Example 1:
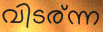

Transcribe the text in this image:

വിടര്ന്ന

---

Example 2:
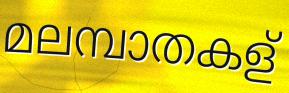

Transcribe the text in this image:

മലമ്പാതകള്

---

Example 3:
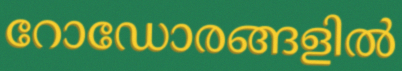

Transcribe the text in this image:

റോഡോരങ്ങളിൽ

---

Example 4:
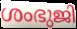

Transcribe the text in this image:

ശംഭുജി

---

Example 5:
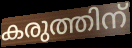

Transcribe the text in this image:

കരുത്തിന്